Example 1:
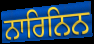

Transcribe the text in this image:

ਨਾਰਿਨਿਨ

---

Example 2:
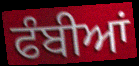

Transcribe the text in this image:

ਫੰਬੀਆਂ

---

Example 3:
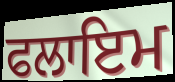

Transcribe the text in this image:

ਫਲਾਇਮ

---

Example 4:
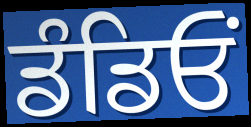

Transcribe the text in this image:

ਡੰਡਿਓਂ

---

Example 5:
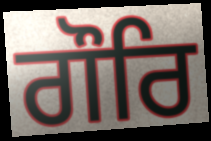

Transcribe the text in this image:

ਗੌਰਿ